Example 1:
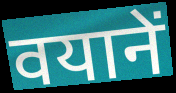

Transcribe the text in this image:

वयानें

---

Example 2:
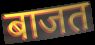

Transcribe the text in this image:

बाजत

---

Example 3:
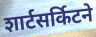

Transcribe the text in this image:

शार्टसर्किटने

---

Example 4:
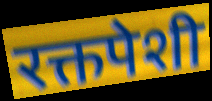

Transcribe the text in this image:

रक्तपेशी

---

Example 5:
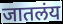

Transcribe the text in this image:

जातलंय